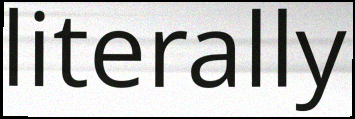
literally